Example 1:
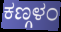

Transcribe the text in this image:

ಕಣ್ಗಳಂ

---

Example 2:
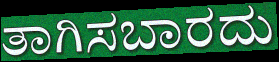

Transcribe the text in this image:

ತಾಗಿಸಬಾರದು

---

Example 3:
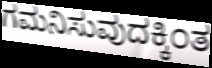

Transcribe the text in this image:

ಗಮನಿಸುವುದಕ್ಕಿಂತ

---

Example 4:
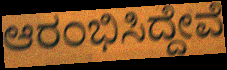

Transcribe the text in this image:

ಆರಂಭಿಸಿದ್ದೇವೆ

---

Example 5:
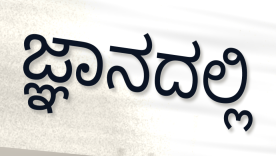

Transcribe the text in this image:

ಜ್ಞಾನದಲ್ಲಿ